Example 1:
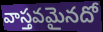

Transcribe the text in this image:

వాస్తవమైనదో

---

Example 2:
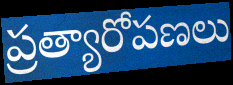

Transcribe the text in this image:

ప్రత్యారోపణలు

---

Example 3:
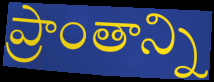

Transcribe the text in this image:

ప్రాంతాన్ని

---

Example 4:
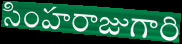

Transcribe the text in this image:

సింహరాజుగారి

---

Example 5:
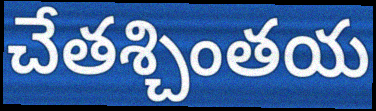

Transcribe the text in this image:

చేతశ్చింతయ